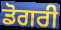
ਡੋਗਰੀ